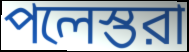
পলেস্তরা